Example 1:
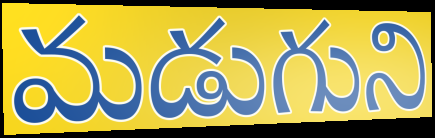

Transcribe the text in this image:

మడుగుని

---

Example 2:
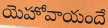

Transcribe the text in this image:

యెహోవాయందే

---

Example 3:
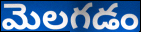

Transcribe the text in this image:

మెలగడం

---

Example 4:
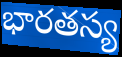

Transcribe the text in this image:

భారతస్య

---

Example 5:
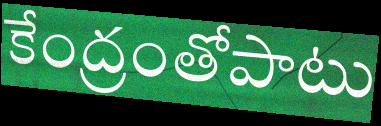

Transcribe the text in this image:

కేంద్రంతోపాటు